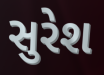
સુરેશ